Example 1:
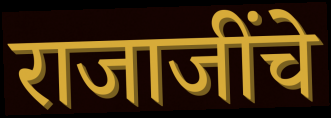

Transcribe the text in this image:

राजाजींचे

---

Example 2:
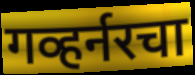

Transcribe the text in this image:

गव्हर्नरचा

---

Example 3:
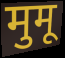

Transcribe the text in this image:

मुमू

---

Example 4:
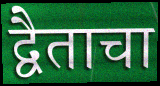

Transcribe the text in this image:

द्वैताचा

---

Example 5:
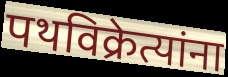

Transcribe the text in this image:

पथविक्रेत्यांना